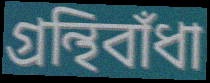
গ্রন্থিবাঁধা